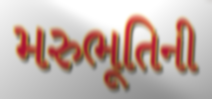
મરુભૂતિની